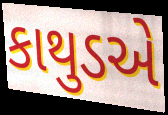
કાથુડએ